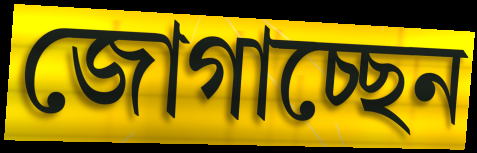
জোগাচ্ছেন